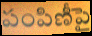
పంపిణీపై